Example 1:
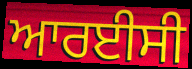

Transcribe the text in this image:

ਆਰਈਸੀ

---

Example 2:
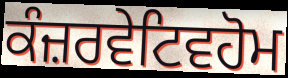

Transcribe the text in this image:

ਕੰਜ਼ਰਵੇਟਿਵਹੋਮ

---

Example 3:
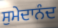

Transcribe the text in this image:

ਸੁਮੇਦਾਨੰਦ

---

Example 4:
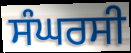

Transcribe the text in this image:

ਸੰਘਰਸੀ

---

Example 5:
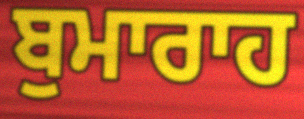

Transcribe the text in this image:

ਬੁਮਾਰਾਹ